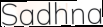
Sadhna